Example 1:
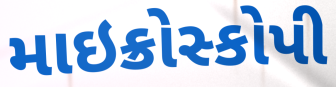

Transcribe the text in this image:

માઇક્રોસ્કોપી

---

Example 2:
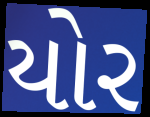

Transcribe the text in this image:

યોર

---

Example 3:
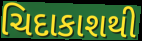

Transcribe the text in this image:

ચિદાકાશથી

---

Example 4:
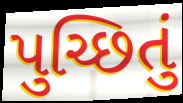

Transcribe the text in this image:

પુચ્છિતું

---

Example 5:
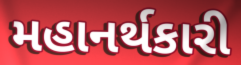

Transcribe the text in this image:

મહાનર્થકારી